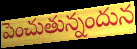
పెంచుతున్నందున